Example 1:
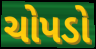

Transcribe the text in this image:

ચોપડો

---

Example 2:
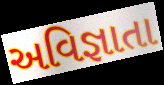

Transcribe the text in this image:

અવિજ્ઞાતા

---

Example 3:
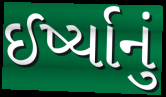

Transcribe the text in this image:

ઈર્ષ્યાનું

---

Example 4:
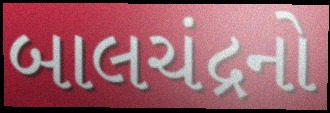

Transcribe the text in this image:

બાલચંદ્રનો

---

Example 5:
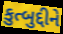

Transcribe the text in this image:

કુત્બુદ્દીને